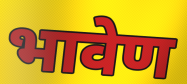
भावेण